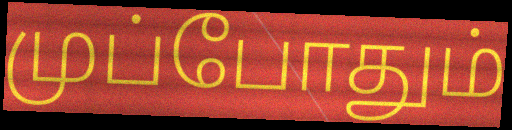
முப்போதும்